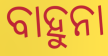
ବାହୁନା